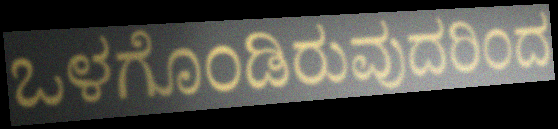
ಒಳಗೊಂಡಿರುವುದರಿಂದ